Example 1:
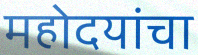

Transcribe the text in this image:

महोदयांचा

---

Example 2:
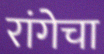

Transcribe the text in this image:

रांगेचा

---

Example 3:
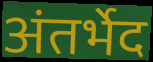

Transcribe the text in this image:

अंतर्भेद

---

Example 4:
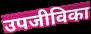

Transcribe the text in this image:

उपजीविका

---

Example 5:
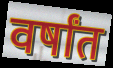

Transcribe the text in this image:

वर्षांत